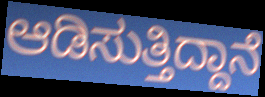
ಆಡಿಸುತ್ತಿದ್ದಾನೆ